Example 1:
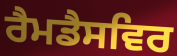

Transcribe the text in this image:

ਰੈਮਡੈਸਵਿਰ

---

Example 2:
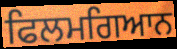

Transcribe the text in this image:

ਫਿਲਮਗਿਆਨ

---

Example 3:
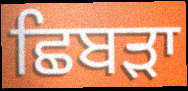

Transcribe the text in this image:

ਛਿਬੜਾ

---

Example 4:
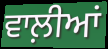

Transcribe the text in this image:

ਵਾਲ਼ੀਆਂ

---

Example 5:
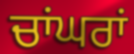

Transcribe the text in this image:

ਚਾਂਘਰਾਂ